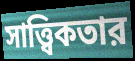
সাত্ত্বিকতার